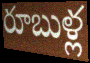
రూబుళ్ల